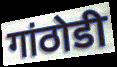
गांठोडी